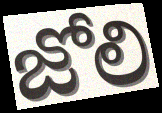
జోలి